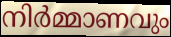
നിർമ്മാണവും